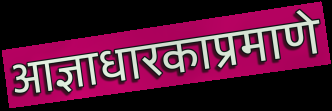
आज्ञाधारकाप्रमाणे